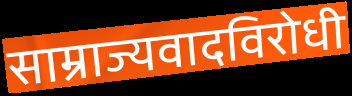
साम्राज्यवादविरोधी